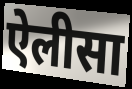
ऐलीसा